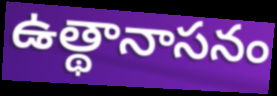
ఉత్థానాసనం